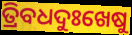
ତ୍ରିବଧଦୁଃଖେଷୁ